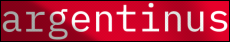
argentinus